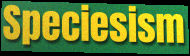
Speciesism